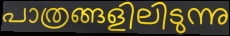
പാത്രങ്ങളിലിടുന്നു